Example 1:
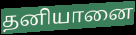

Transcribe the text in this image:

தனியானை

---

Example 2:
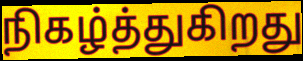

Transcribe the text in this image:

நிகழ்த்துகிறது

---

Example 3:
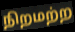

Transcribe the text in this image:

நிறமற்ற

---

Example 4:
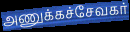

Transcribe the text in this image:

அணுக்கச்சேவகர்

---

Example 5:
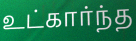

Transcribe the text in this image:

உட்கார்ந்த